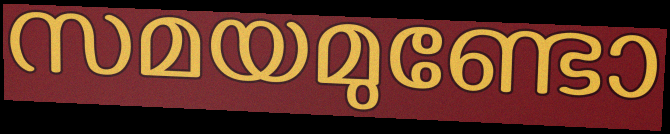
സമയമുണ്ടോ